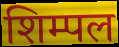
शिम्पल